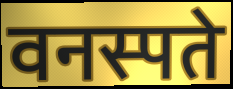
वनस्पते